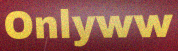
Onlyww